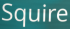
Squire